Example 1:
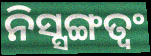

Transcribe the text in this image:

ନିସ୍ସଙ୍ଗତ୍ୱଂ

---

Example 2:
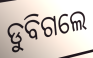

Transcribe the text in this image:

ଡୁବିଗଲେ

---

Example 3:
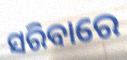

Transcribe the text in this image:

ସରିବାରେ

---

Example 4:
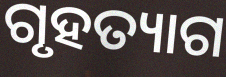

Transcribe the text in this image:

ଗୃହତ୍ୟାଗ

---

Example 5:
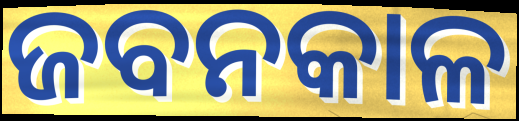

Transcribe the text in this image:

ଜବନକାଳ